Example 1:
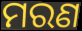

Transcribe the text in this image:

ମରଣ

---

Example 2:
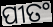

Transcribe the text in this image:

ପୀତଂ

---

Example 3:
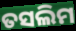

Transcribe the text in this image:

ତସଲିମ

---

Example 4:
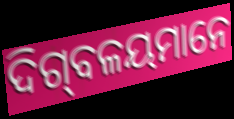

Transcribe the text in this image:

ଦିଗ୍‌ବଳୟମାନେ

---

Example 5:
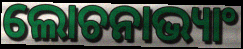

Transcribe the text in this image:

ଲୋଚନାଭ୍ୟାଂ